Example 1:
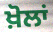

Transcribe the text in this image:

ਖ਼ੋਲਾਂ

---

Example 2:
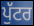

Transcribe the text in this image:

ਪੁੱਟਰ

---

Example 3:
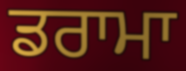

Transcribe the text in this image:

ਡਰਾਮਾ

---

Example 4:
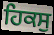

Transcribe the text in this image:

ਹਿਕਸੁ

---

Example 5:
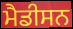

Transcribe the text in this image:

ਮੈਡੀਸਨ